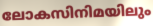
ലോകസിനിമയിലും